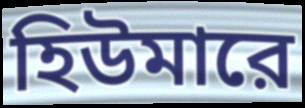
হিউমারে